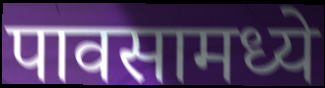
पावसामध्ये